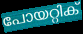
പോയറ്റിക്